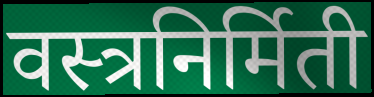
वस्त्रनिर्मिती